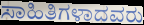
ಸಾಹಿತಿಗಳಾದವರು